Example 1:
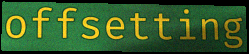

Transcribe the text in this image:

offsetting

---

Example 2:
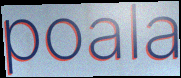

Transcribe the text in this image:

poala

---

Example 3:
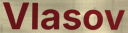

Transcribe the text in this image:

Vlasov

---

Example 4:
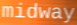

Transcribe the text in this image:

midway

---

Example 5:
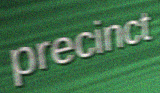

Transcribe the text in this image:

precinct